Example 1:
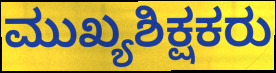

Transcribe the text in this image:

ಮುಖ್ಯಶಿಕ್ಷಕರು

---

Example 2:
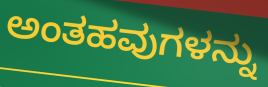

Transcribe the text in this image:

ಅಂತಹವುಗಳನ್ನು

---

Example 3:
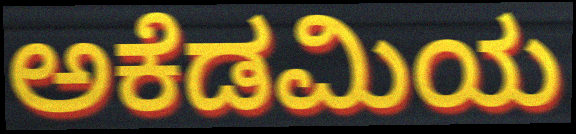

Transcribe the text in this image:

ಅಕೆಡಮಿಯ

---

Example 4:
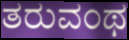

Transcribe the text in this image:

ತರುವಂಥ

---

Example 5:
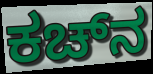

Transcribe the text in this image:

ಕಚ್‌ನ